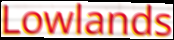
Lowlands